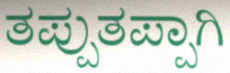
ತಪ್ಪುತಪ್ಪಾಗಿ